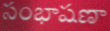
సంభాషణా